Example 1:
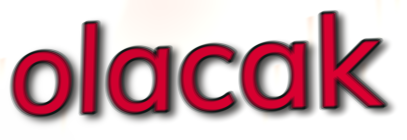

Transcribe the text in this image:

olacak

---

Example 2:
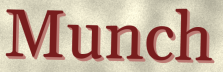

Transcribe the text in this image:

Munch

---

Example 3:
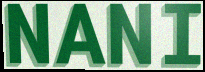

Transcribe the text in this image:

NANI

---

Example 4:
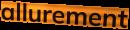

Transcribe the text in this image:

allurement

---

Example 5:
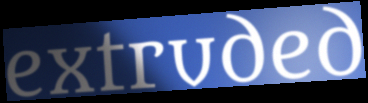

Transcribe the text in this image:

extruded